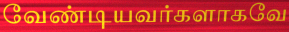
வேண்டியவர்களாகவே